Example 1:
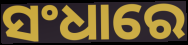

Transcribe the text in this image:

ସଂଧାରେ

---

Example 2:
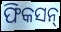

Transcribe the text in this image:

ଫିକସନ୍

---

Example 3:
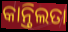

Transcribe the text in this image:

କାନ୍ତିଲତା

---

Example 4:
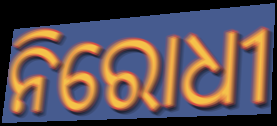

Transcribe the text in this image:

ନିରୋଧୀ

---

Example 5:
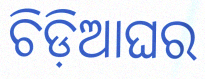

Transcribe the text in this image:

ଚିଡ଼ିଆଘର